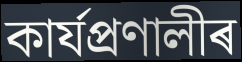
কাৰ্যপ্ৰণালীৰ